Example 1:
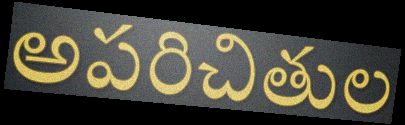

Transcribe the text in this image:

అపరిచితుల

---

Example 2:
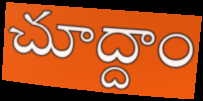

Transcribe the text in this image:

చూద్దాం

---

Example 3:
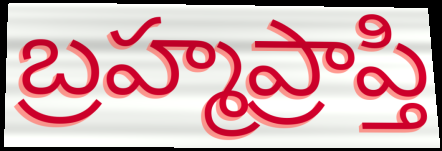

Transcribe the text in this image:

బ్రహ్మప్రాప్తి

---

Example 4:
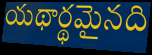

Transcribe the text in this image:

యథార్థమైనది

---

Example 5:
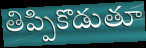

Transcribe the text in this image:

తిప్పికొడుతూ